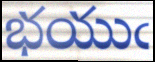
భయుఁ